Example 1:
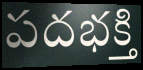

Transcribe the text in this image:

పదభక్తి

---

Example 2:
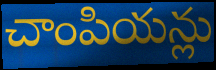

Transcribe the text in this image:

చాంపియన్లు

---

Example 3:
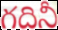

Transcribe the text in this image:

గదినీ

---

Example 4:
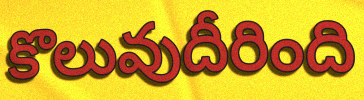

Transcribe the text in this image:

కొలువుదీరింది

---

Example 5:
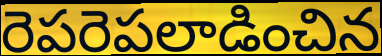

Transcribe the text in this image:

రెపరెపలాడించిన